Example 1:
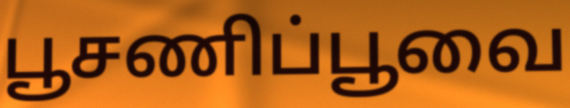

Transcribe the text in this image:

பூசணிப்பூவை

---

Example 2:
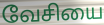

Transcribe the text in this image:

வேசியை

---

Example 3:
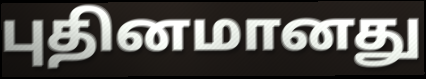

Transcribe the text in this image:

புதினமானது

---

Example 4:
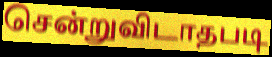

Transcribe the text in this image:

சென்றுவிடாதபடி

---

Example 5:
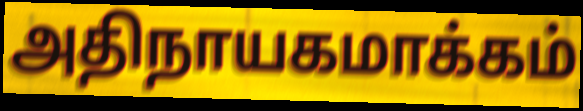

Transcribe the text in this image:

அதிநாயகமாக்கம்